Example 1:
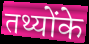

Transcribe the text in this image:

तथ्योंके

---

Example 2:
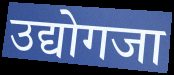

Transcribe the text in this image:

उद्योगजा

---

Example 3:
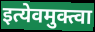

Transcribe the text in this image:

इत्येवमुक्त्वा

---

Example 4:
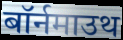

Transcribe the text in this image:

बॉर्नमाउथ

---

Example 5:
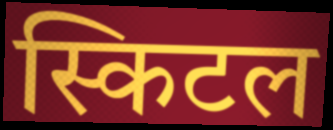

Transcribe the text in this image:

स्किटल